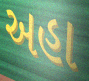
અહા